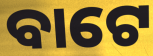
ବାଟେ